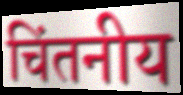
चिंतनीय